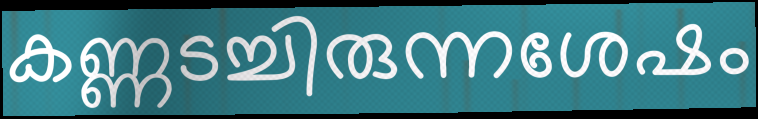
കണ്ണടച്ചിരുന്നശേഷം